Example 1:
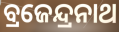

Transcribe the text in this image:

ବ୍ରଜେନ୍ଦ୍ରନାଥ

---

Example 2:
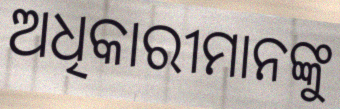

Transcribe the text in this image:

ଅଧିକାରୀମାନଙ୍କୁ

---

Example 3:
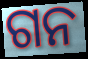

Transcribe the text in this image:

ଗନ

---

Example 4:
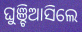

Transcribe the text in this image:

ଘୁଞ୍ଚିଆସିଲେ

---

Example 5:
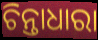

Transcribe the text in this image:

ଚିନ୍ତାଧାରା